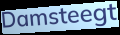
Damsteegt